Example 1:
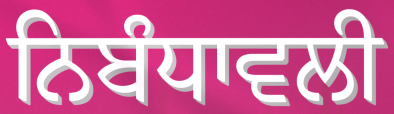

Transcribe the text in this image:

ਨਿਬੰਧਾਵਲੀ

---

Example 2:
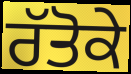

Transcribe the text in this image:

ਰੱਤੋਕੇ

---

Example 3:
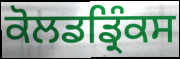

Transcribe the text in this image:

ਕੋਲਡਡ੍ਰਿੰਕਸ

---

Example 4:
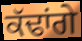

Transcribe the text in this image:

ਕੱਢਾਂਗੇ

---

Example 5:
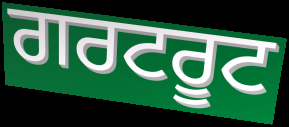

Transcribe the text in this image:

ਗਰਟਰੂਟ